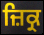
ਜ਼ਿਕ੍ਰ